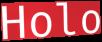
Holo